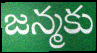
జన్మకు